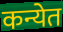
कन्येत